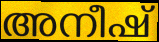
അനീഷ്